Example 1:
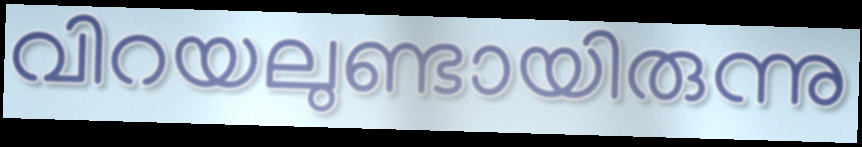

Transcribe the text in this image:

വിറയലുണ്ടായിരുന്നു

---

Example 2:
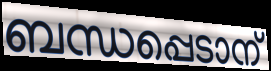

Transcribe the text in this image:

ബന്ധപ്പെടാന്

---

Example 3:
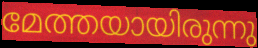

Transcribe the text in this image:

മേത്തയായിരുന്നു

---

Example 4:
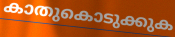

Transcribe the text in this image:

കാതുകൊടുക്കുക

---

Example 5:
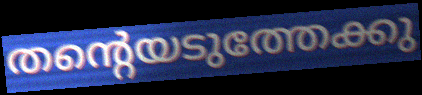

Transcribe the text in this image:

തന്റെയടുത്തേക്കു